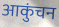
आकुंचन